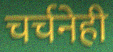
चर्चनेही